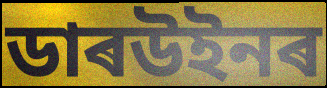
ডাৰউইনৰ